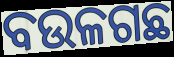
ବଉଳଗଛ